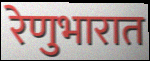
रेणुभारात